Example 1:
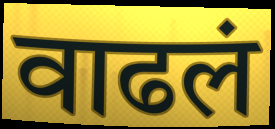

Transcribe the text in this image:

वाढलं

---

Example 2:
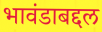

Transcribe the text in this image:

भावंडाबद्दल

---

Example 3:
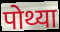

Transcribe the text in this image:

पोथ्या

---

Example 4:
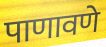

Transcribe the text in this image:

पाणावणे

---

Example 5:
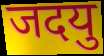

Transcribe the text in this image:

जदयु